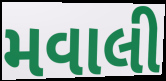
મવાલી